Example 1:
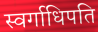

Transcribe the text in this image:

स्वर्गाधिपति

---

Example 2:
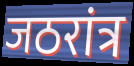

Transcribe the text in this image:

जठरांत्र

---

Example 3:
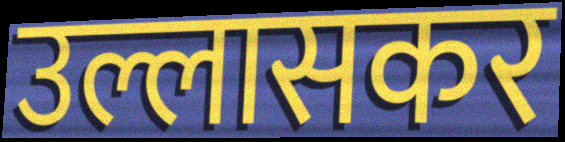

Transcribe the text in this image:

उल्लासकर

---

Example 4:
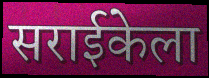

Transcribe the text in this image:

सराईकेला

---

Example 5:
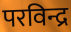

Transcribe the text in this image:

परविन्द्र